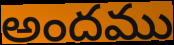
అందము